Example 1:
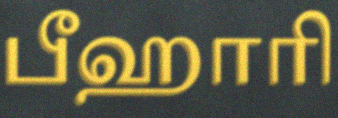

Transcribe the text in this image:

பீஹாரி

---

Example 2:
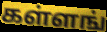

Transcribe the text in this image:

கள்ளங்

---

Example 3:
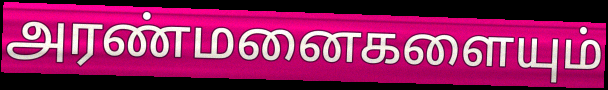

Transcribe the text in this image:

அரண்மனைகளையும்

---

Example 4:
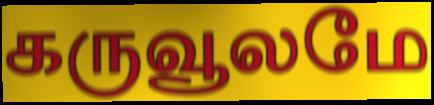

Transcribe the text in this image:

கருவூலமே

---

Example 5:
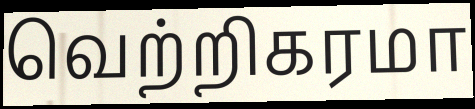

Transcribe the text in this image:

வெற்றிகரமா